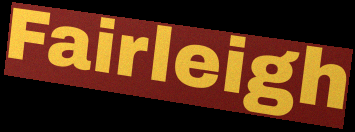
Fairleigh